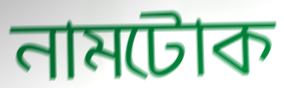
নামটোক